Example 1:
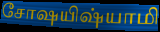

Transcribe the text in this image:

சோஷயிஷ்யாமி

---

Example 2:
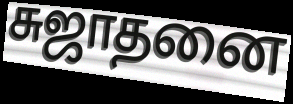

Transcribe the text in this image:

சுஜாதனை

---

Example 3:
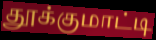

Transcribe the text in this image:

தூக்குமாட்டி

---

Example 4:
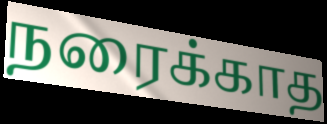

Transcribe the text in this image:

நரைக்காத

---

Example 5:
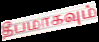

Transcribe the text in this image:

தீபமாகவும்